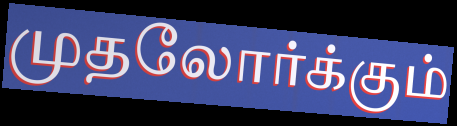
முதலோர்க்கும்